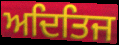
ਅਦਿਤਿਜ